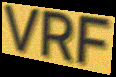
VRF